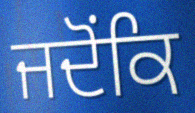
ਜਦੋਂਕਿ